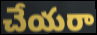
చేయరా